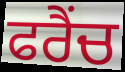
ਫਰੈਂਚ